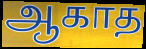
ஆகாத